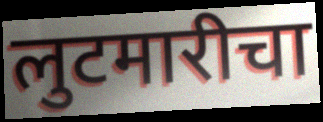
लुटमारीचा